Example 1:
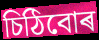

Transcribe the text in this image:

চিঠিবোৰ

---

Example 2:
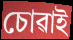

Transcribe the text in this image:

চোৱাই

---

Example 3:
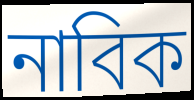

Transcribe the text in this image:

নাবিক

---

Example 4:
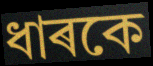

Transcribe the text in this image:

ধাৰকে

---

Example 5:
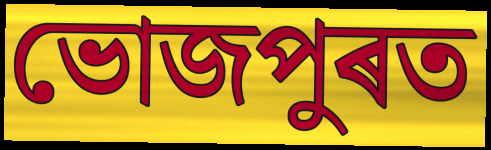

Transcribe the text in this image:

ভোজপুৰত